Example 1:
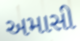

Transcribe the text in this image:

અમાસી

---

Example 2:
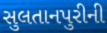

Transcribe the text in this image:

સુલતાનપુરીની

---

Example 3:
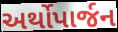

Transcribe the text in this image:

અર્થોપાર્જન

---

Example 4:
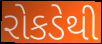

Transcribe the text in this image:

રોકડેથી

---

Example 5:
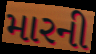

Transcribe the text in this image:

મારની